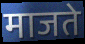
माजते